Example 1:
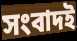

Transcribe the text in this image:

সংবাদই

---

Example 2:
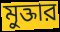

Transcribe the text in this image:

মুক্তার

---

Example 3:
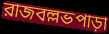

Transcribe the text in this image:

রাজবল্লভপাড়া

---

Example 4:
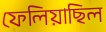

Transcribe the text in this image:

ফেলিয়াছিল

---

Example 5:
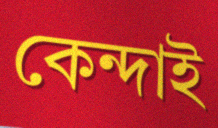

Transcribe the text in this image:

কেন্দাই